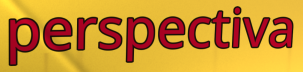
perspectiva